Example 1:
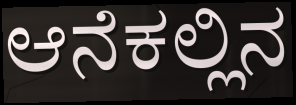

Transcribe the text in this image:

ಆನೆಕಲ್ಲಿನ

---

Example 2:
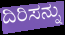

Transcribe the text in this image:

ದಿರಿಸನ್ನು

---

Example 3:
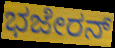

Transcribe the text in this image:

ಭಜೇರನ್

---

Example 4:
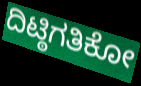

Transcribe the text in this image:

ದಿಟ್ಠಿಗತಿಕೋ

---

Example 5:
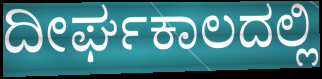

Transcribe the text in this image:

ದೀರ್ಘಕಾಲದಲ್ಲಿ